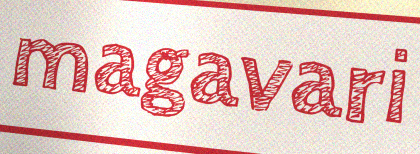
magavari